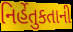
નિર્હેતુકતાની